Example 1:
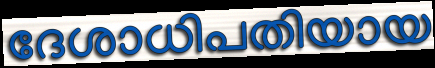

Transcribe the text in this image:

ദേശാധിപതിയായ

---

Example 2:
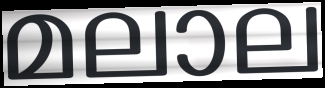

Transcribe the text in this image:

മലാല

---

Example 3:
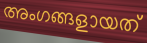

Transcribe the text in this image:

അംഗങ്ങളായത്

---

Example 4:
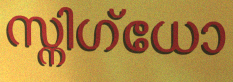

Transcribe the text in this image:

സ്നിഗ്ധോ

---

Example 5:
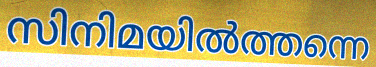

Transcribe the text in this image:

സിനിമയിൽത്തന്നെ